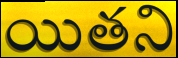
యితని